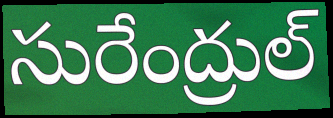
సురేంద్రుల్